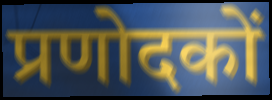
प्रणोदकों